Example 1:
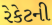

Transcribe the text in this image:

રેકેટની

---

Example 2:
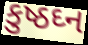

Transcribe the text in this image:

કુષ્ઠઘ્ન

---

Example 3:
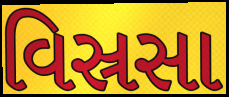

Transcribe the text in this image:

વિસ્રસા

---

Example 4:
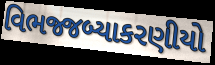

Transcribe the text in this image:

વિભજ્જબ્યાકરણીયો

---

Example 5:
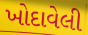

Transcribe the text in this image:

ખોદાવેલી